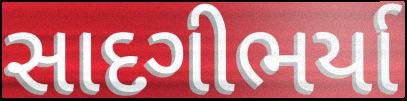
સાદગીભર્યા